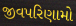
જીવપરિણામો